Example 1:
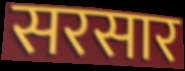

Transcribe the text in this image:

सरसार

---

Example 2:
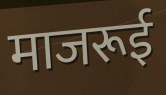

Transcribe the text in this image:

माजरूई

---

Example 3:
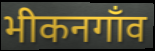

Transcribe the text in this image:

भीकनगाँव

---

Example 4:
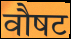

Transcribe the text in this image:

वौषट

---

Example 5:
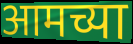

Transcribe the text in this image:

आमच्या